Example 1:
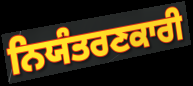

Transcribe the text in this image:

ਨਿਯੰਤਰਣਕਾਰੀ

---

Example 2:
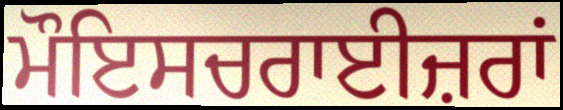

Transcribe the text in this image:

ਮੌਇਸਚਰਾਈਜ਼ਰਾਂ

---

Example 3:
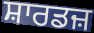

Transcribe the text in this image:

ਸ਼ਾਰਡਜ਼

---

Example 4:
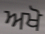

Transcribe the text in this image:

ਅਖੋ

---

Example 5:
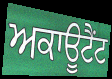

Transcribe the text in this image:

ਅਕਾਊਟੈਂਟ